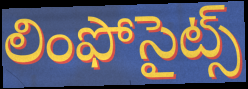
లింఫోసైట్స్